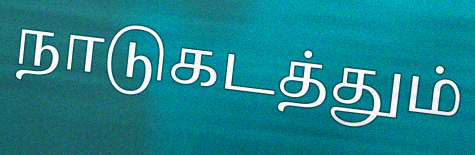
நாடுகடத்தும்